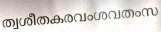
ത്വശീതകരവംശവതംസ